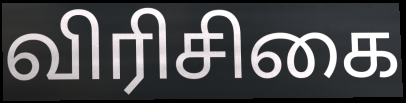
விரிசிகை